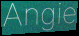
Angie